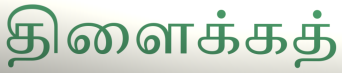
திளைக்கத்